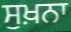
ਸੁਖ਼ਨਾ